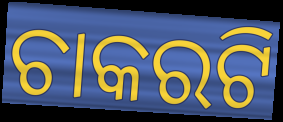
ଚାକରଟି